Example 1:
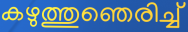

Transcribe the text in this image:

കഴുത്തുഞെരിച്ച്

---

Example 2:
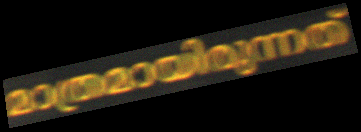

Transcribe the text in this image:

മാത്രമായിരുന്നത്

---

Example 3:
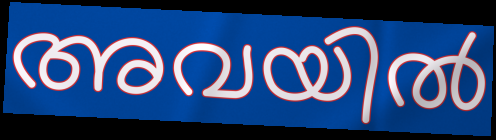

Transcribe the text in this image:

അവയിൽ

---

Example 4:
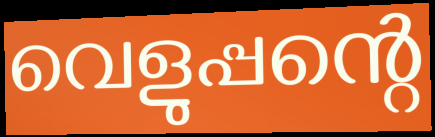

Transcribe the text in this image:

വെളുപ്പന്റെ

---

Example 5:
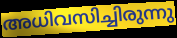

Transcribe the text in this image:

അധിവസിച്ചിരുന്നു